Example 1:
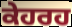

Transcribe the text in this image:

ਕੇਹਰਹ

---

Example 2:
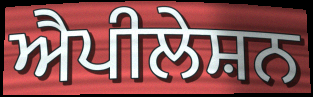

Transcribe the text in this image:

ਐਪੀਲੇਸ਼ਨ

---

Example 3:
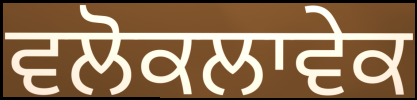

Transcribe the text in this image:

ਵਲੋਕਲਾਵੇਕ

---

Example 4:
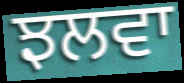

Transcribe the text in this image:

ਝਲਵਾ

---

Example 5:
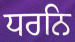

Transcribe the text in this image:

ਧਰਨਿ